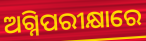
ଅଗ୍ନିପରୀକ୍ଷାରେ